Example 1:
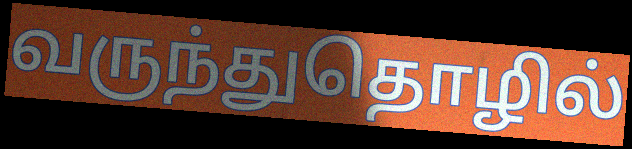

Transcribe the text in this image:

வருந்துதொழில்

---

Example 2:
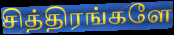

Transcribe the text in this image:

சித்திரங்களே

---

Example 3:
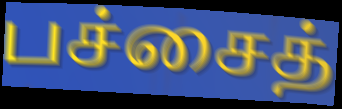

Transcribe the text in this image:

பச்சைத்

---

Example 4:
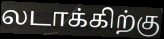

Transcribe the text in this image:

லடாக்கிற்கு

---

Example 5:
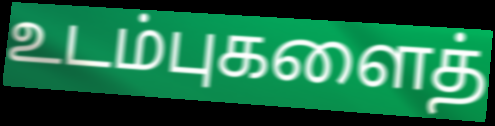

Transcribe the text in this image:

உடம்புகளைத்